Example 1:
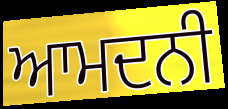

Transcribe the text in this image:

ਆਮਦਨੀ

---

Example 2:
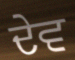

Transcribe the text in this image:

ਦੇਵ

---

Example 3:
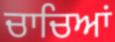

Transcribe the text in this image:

ਚਾਚਿਆਂ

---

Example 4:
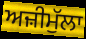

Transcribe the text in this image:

ਅਜ਼ੀਮੁੱਲਾ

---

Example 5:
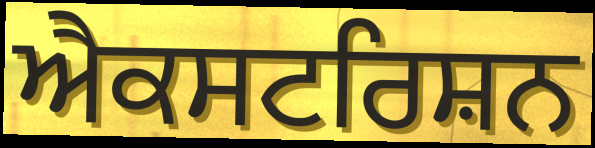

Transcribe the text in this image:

ਐਕਸਟਰਿਸ਼ਨ